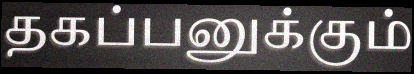
தகப்பனுக்கும்